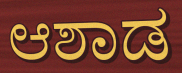
ಆಶಾಡ